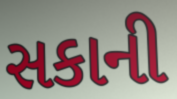
સકાની